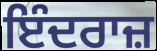
ਇੰਦਰਾਜ਼